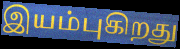
இயம்புகிறது